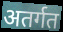
अतर्गत